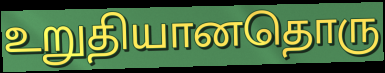
உறுதியானதொரு